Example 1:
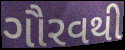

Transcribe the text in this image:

ગૌરવથી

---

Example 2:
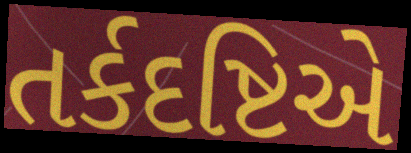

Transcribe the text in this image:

તર્કદષ્ટિએ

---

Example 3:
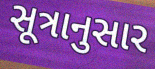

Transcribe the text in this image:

સૂત્રાનુસાર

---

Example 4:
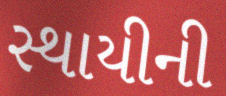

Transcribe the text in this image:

સ્થાયીની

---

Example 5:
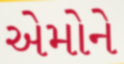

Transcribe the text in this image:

એમોને